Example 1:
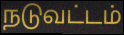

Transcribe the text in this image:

நடுவட்டம்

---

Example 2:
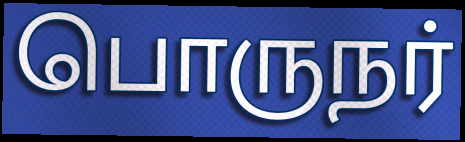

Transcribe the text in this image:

பொருநர்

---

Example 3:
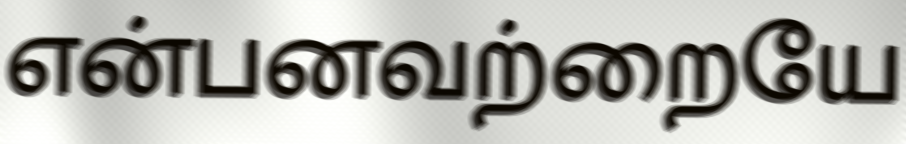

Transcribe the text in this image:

என்பனவற்றையே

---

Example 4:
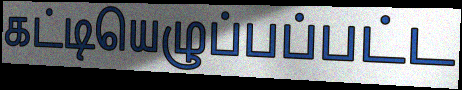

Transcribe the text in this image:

கட்டியெழுப்பப்பட்ட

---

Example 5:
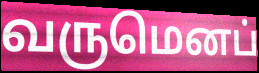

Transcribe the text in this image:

வருமெனப்